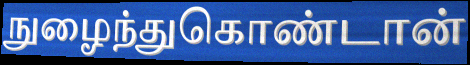
நுழைந்துகொண்டான்